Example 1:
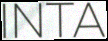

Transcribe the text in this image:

INTA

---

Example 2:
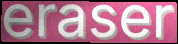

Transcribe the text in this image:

eraser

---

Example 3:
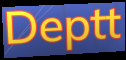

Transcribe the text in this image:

Deptt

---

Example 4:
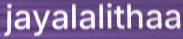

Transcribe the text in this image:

jayalalithaa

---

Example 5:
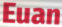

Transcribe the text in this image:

Euan